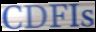
CDFIs